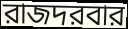
রাজদরবার